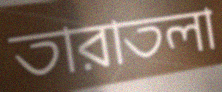
তারাতলা